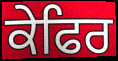
ਕੇਫਿਰ